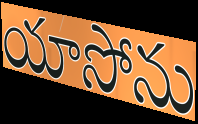
యాసోను